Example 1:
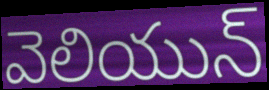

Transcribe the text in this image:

వెలియున్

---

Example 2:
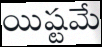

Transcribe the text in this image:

యిష్టమే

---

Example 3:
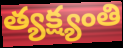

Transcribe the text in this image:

త్యక్ష్యంతి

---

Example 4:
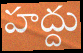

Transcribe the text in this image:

హద్దు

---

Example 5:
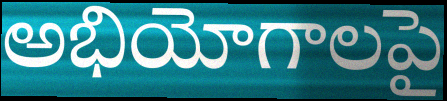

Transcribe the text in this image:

అభియోగాలపై